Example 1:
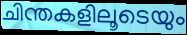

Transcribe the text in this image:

ചിന്തകളിലൂടെയും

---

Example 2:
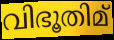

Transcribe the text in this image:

വിഭൂതിമ്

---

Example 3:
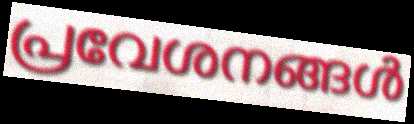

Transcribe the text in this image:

പ്രവേശനങ്ങൾ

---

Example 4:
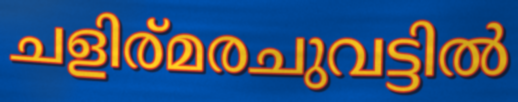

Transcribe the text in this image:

ചളിര്മരചുവട്ടിൽ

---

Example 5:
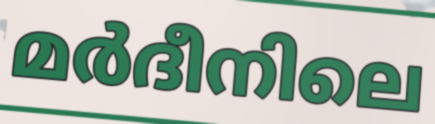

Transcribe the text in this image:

മർദീനിലെ